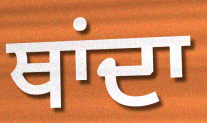
ਥਾਂਦਾ